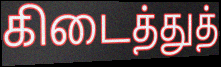
கிடைத்துத்